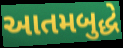
આતમબુદ્ધે